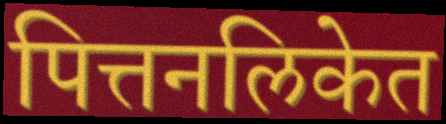
पित्तनलिकेत